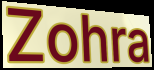
Zohra